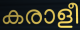
കരാളീ